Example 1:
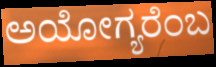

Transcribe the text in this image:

ಅಯೋಗ್ಯರೆಂಬ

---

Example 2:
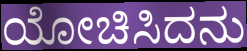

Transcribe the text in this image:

ಯೋಚಿಸಿದನು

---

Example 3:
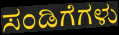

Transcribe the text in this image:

ಸಂಡಿಗೆಗಳು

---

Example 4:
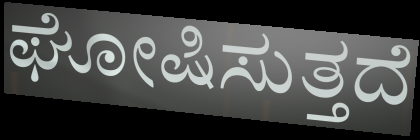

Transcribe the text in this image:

ಘೋಷಿಸುತ್ತದೆ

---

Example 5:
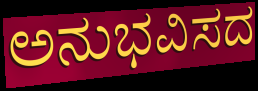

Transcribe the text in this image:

ಅನುಭವಿಸದ